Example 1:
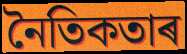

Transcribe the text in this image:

নৈতিকতাৰ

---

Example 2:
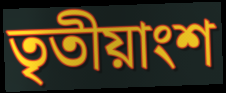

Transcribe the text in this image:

তৃতীয়াংশ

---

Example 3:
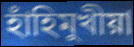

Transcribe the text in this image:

হাঁহিমুখীয়া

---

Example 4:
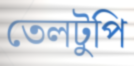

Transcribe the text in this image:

তেলটুপি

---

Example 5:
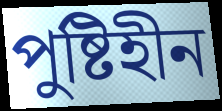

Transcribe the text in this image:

পুষ্টিহীন